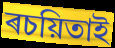
ৰচয়িতাই